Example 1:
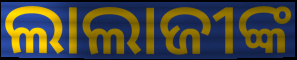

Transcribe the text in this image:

ଲାଲାଜୀଙ୍କ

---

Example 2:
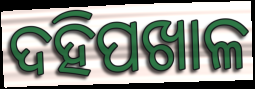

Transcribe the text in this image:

ଦହିପଖାଳ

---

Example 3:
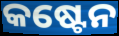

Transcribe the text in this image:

କଷ୍ଟେନ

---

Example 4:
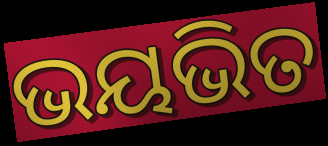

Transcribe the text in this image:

ଭୟଭିତ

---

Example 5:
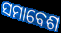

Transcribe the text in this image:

ସମାବେଶ